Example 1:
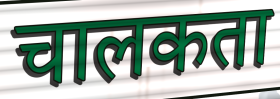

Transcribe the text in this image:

चालकता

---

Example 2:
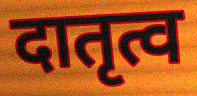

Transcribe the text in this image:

दातृत्व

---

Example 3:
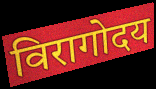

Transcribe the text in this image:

विरागोदय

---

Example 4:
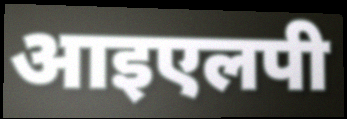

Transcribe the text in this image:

आइएलपी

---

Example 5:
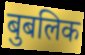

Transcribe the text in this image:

बुबलिक